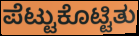
ಪೆಟ್ಟುಕೊಟ್ಟಿತು